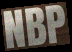
NBP